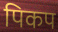
पिकप